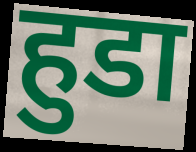
हुडा